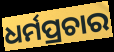
ଧର୍ମପ୍ରଚାର